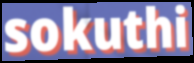
sokuthi